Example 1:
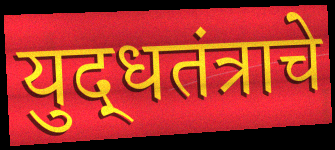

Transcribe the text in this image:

युद्धतंत्राचे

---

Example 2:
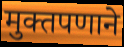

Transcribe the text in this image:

मुक्तपणाने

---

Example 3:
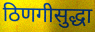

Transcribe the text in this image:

ठिणगीसुद्धा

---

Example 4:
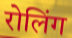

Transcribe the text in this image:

रोलिंग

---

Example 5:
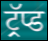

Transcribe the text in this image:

ट्रॅप्ड